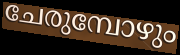
ചേരുമ്പോഴും